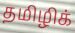
தமிழிக்